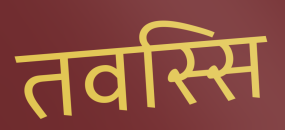
तवस्सि